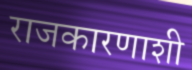
राजकारणाशी